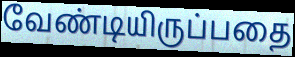
வேண்டியிருப்பதை